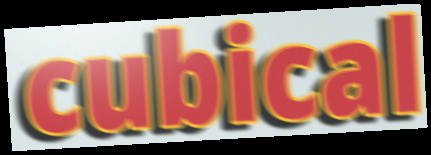
cubical